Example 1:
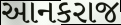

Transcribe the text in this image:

આનકરાજ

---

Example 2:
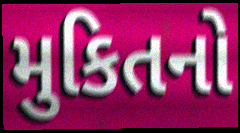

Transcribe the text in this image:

મુકિતનો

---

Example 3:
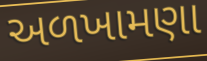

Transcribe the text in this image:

અળખામણા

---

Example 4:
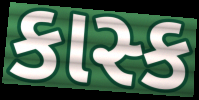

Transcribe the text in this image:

કાસ્ક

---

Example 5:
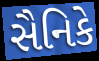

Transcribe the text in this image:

સૈનિકે